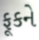
ફૂકને